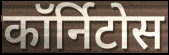
कॉर्निटोस